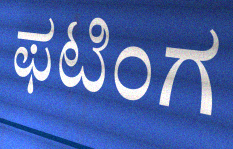
ಫಟಿಂಗ